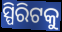
ସ୍ପିରିଟକୁ